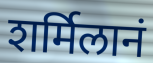
शर्मिलानं